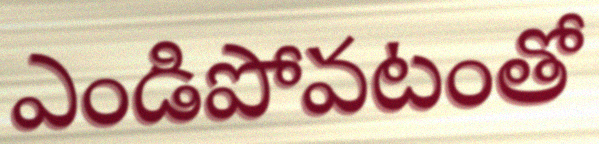
ఎండిపోవటంతో